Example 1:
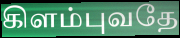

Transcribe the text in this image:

கிளம்புவதே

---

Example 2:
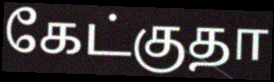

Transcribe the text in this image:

கேட்குதா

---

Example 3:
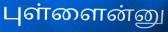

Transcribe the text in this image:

புள்ளைன்னு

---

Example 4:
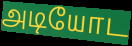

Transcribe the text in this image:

அடியோட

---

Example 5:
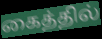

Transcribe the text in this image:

கைத்தில்